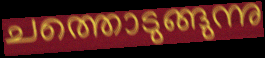
ചത്തൊടുങ്ങുന്നു